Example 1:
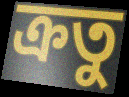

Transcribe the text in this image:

ক্রতু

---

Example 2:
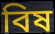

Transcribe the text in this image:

বিষ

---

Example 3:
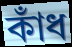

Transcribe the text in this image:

কাঁধ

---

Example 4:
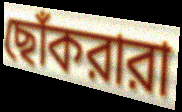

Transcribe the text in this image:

ছোঁকরারা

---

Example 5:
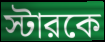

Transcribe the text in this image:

স্টারকে